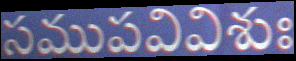
సముపవివిశుః